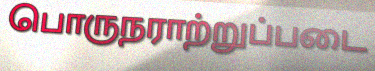
பொருநராற்றுப்படை